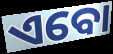
ଏବୋ